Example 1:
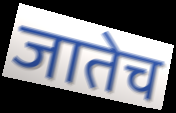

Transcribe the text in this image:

जातेच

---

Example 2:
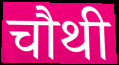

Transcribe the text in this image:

चौथी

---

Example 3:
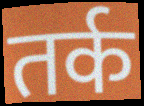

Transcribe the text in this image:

तर्क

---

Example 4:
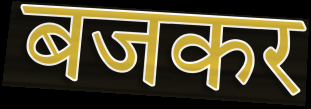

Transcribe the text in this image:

बजकर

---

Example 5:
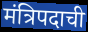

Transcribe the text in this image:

मंत्रिपदाची